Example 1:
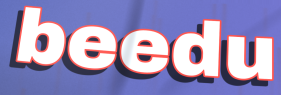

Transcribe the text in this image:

beedu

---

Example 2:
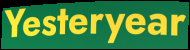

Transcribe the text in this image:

Yesteryear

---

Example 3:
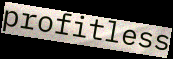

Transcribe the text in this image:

profitless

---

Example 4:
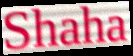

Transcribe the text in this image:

Shaha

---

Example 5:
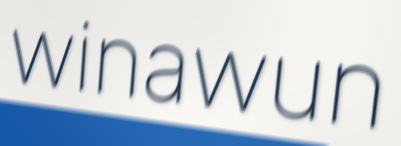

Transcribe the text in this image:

winawun